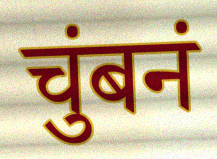
चुंबनं